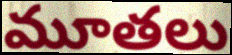
మూతలు